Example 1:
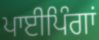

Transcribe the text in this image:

ਪਾਈਪਿੰਗਾਂ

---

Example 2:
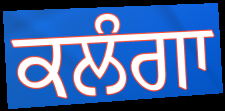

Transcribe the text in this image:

ਕਲੰਗਾ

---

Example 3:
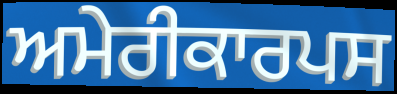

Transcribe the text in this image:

ਅਮੇਰੀਕਾਰਪਸ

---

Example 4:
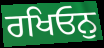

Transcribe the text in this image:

ਰਖਿਓਨੁ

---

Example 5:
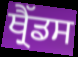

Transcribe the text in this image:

ਥ੍ਰੈੱਡਸ